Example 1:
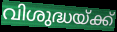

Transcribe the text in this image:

വിശുദ്ധയ്ക്ക്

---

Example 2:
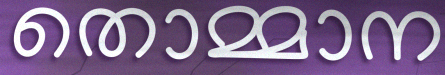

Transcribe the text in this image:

തൊമ്മാന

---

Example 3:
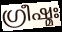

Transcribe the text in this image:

ഗ്രീഷ്മഃ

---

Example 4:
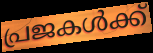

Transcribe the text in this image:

പ്രജകൾക്ക്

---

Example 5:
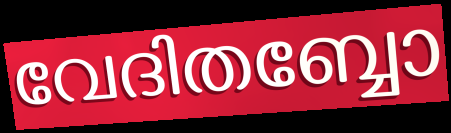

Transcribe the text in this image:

വേദിതബ്ബോ